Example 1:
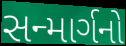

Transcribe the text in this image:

સન્માર્ગનો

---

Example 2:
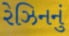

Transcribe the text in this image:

રેઝિનનું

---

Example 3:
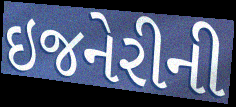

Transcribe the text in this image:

ઇજનેરીની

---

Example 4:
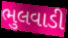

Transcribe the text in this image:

ભુલવાડી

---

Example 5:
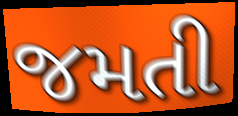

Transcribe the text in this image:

જમતી